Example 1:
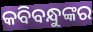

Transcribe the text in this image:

କବିବନ୍ଧୁଙ୍କର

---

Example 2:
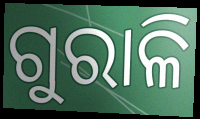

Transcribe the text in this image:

ଗୁରାଳି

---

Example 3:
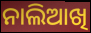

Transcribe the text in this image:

ନାଲିଆଖି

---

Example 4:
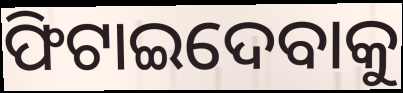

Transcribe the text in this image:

ଫିଟାଇଦେବାକୁ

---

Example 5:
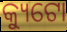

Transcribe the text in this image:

କ୍ୟୁଟୋ